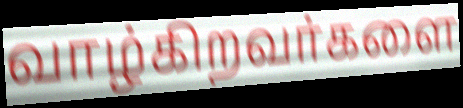
வாழ்கிறவர்களை